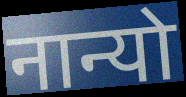
नान्यो